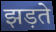
झड़ते